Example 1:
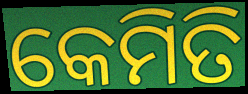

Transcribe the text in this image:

କେମିତି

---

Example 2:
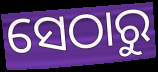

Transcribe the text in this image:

ସେଠାରୁ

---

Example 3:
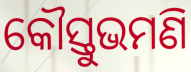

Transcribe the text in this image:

କୌସ୍ତୁଭମଣି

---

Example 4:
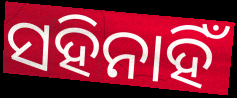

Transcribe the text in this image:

ସହିନାହିଁ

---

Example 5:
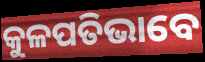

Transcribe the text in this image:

କୁଳପତିଭାବେ